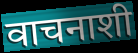
वाचनाशी